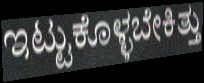
ಇಟ್ಟುಕೊಳ್ಳಬೇಕಿತ್ತು